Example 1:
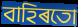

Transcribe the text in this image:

বাহিৰতো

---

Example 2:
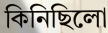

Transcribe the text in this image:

কিনিছিলো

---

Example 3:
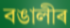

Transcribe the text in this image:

বঙালীৰ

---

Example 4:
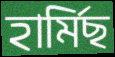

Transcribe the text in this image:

হাৰ্মিছ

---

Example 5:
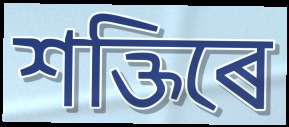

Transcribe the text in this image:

শক্তিৰে